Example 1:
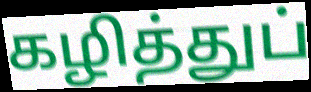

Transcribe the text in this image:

கழித்துப்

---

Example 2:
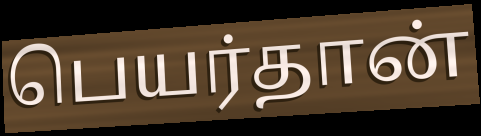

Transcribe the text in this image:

பெயர்தான்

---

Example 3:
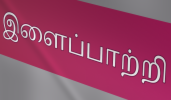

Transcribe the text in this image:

இளைப்பாற்றி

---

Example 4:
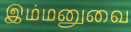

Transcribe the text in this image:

இம்மனுவை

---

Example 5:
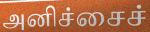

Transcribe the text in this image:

அனிச்சைச்